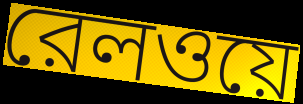
রেলওয়ে